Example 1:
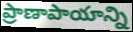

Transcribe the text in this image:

ప్రాణాపాయాన్ని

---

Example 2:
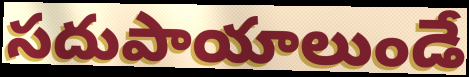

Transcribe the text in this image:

సదుపాయాలుండే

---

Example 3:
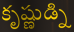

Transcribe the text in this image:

కృష్ణుడ్ని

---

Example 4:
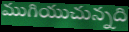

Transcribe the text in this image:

ముగియుచున్నది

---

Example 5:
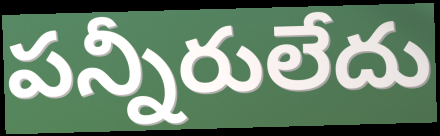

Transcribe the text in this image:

పన్నీరులేదు